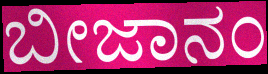
ಬೀಜಾನಂ